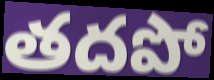
తదపో